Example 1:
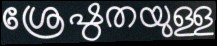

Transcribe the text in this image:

ശ്രേഷ്ഠതയുള്ള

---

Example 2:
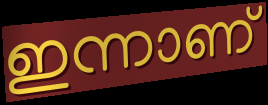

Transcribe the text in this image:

ഇന്നാണ്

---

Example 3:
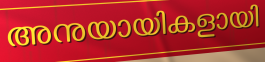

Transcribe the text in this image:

അനുയായികളായി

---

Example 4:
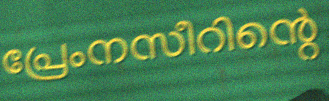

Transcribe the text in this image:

പ്രേംനസീറിന്റെ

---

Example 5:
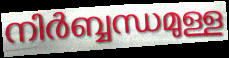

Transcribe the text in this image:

നിർബ്ബന്ധമുള്ള